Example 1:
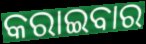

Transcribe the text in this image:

କରାଇବାର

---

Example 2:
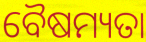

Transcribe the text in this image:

ବୈଷମ୍ୟତା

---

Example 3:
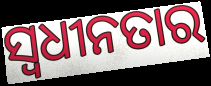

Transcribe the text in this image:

ସ୍ବଧୀନତାର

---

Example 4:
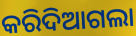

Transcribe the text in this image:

କରିଦିଆଗଲା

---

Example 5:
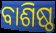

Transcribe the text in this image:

ବାଶିଷ୍ଠ